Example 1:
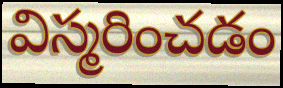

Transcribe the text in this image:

విస్మరించడం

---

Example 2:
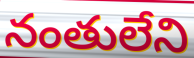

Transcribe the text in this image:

నంతులేని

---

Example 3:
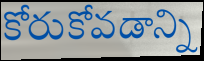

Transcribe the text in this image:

కోరుకోవడాన్ని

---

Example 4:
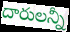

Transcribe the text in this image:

దారులన్నీ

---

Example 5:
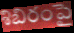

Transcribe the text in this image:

శిబిరంపై